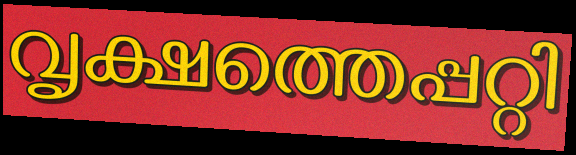
വൃക്ഷത്തെപ്പറ്റി